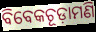
ବିବେକଚୂଡ଼ାମଣି